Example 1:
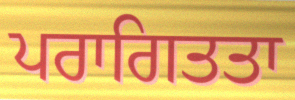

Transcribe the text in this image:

ਪਰਾਗਿਤਤਾ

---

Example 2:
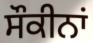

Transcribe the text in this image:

ਸੌਕੀਨਾਂ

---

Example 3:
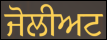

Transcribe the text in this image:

ਜੋਲੀਅਟ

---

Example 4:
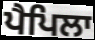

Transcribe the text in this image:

ਪੈਪਿਲਾ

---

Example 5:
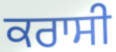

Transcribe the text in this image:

ਕਰਾਸੀ